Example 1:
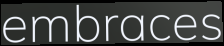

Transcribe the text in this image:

embraces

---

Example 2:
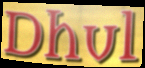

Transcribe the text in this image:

Dhul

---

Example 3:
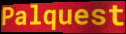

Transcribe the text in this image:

Palquest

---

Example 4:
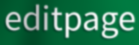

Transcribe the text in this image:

editpage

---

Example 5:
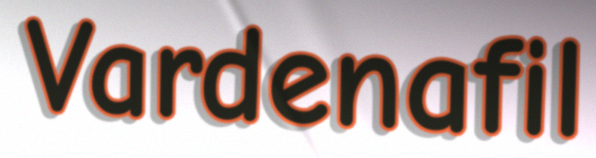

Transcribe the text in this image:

Vardenafil